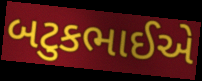
બટુકભાઈએ